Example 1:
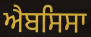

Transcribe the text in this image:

ਐਬਸਿਸਾ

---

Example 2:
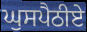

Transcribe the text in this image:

ਘੁਸਪੈਠੀਏ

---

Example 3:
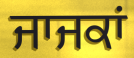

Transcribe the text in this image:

ਜਾਜਕਾਂ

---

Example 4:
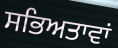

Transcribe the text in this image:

ਸਭਿਅਤਾਵਾਂ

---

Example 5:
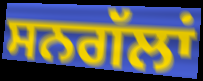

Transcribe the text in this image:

ਸਨਗੱਲਾਂ